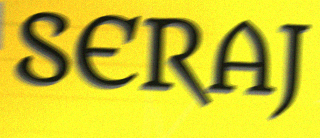
SERAJ